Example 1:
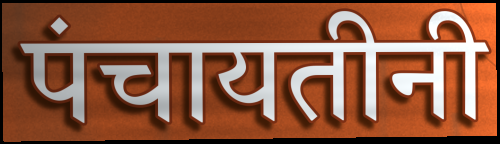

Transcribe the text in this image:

पंचायतीनी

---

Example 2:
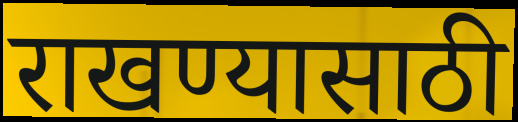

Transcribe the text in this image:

राखण्यासाठी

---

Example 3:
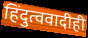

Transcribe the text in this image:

हिंदुत्ववादीही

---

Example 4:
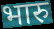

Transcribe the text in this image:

भारु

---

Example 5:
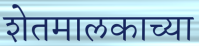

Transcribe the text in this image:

शेतमालकाच्या